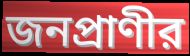
জনপ্রাণীর